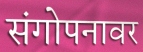
संगोपनावर